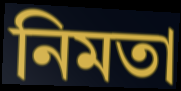
নিমতা